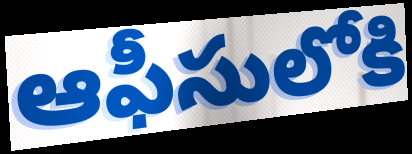
ఆఫీసులోకి